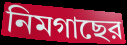
নিমগাছের